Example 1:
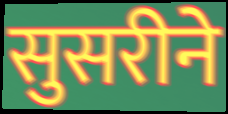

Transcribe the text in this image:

सुसरीने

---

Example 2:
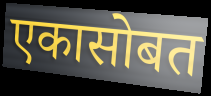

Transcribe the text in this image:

एकासोबत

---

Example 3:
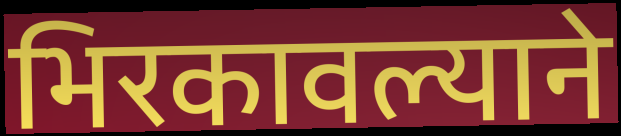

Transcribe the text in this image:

भिरकावल्याने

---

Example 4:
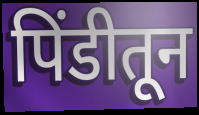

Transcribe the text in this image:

पिंडीतून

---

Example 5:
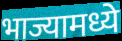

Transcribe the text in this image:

भाज्यामध्ये